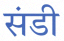
संडी